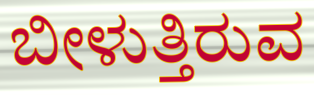
ಬೀಳುತ್ತಿರುವ